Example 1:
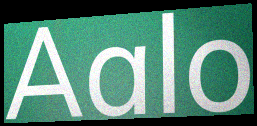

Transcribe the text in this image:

Aalo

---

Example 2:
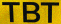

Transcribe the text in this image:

TBT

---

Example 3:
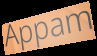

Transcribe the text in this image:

Appam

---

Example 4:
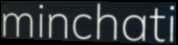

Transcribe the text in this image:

minchati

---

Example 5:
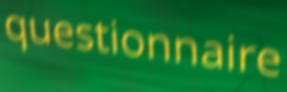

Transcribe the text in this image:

questionnaire